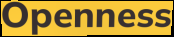
Openness